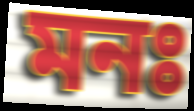
মনঃ